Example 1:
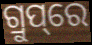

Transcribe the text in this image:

ଗ୍ରୁପ୍‌ରେ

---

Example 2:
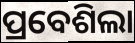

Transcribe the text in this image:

ପ୍ରବେଶିଲା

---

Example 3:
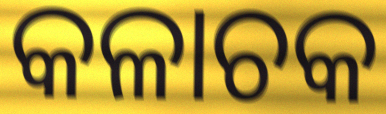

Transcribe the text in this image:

କଳାଚକ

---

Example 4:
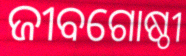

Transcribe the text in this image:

ଜୀବଗୋଷ୍ଠୀ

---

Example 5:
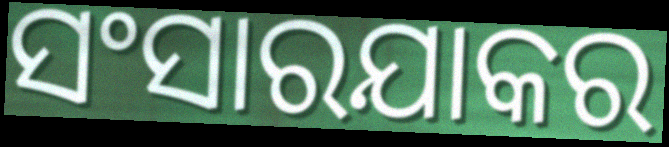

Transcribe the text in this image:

ସଂସାରଯାକର